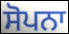
ਸੋਪਨਾ